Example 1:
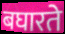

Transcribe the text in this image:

बघारते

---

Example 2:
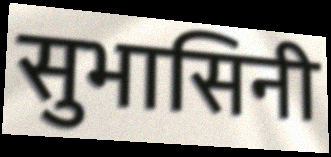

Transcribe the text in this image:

सुभासिनी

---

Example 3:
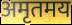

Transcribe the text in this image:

अमृतमय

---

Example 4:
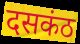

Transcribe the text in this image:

दसकंठ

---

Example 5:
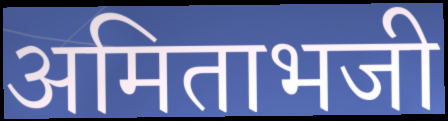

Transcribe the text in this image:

अमिताभजी